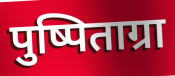
पुष्पिताग्रा